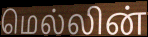
மெல்லின்